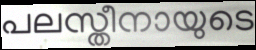
പലസ്തീനായുടെ